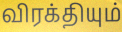
விரக்தியும்